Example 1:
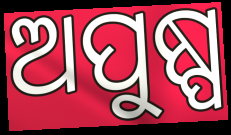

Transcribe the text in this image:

ଅପୁଷ୍ପ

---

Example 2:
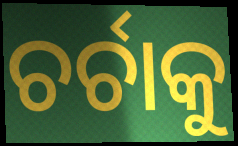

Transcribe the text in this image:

ଚର୍ଚାକୁ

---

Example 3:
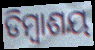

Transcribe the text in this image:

ଡିମ୍ବାଶୟ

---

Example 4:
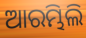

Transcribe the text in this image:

ଆରମ୍ଭିଲି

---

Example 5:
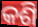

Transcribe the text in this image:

କଶି